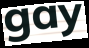
gay